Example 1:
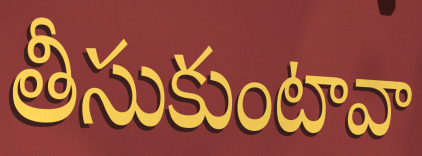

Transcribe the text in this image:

తీసుకుంటావా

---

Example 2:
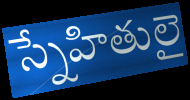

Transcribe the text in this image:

స్నేహితులై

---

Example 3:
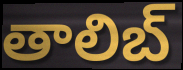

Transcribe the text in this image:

తాలిబ్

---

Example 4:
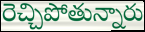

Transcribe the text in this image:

రెచ్చిపోతున్నారు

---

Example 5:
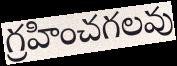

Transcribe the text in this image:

గ్రహించగలవు